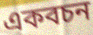
একবচন